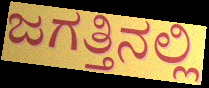
ಜಗತ್ತಿನಲ್ಲಿ